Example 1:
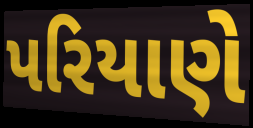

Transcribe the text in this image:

પરિયાણે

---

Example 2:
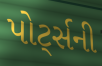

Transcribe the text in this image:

પોર્ટ્સની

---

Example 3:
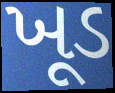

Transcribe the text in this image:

ખૂડ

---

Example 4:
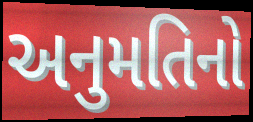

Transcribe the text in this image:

અનુમતિનો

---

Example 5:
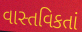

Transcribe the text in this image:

વાસ્તવિકતાં